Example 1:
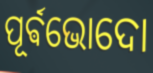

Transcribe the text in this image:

ପୂର୍ଵଭୋଦୋ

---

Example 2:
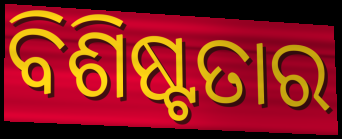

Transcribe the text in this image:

ବିଶିଷ୍ଟତାର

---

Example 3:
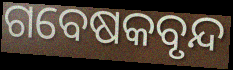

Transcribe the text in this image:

ଗବେଷକବୃନ୍ଦ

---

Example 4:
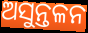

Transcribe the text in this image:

ଅସୁନ୍ତଳନ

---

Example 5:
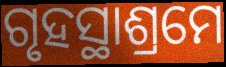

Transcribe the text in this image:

ଗୃହସ୍ଥାଶ୍ରମେ